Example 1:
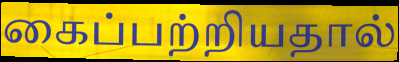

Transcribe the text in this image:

கைப்பற்றியதால்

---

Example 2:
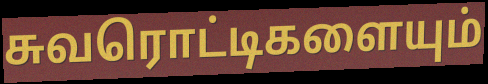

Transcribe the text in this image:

சுவரொட்டிகளையும்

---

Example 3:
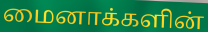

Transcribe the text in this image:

மைனாக்களின்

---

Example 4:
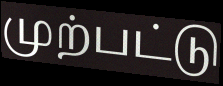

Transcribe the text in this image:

முற்பட்டு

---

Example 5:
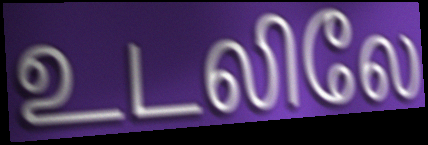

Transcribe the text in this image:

உடலிலே